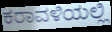
ಕರಾವಳಿಯಲ್ಲಿ